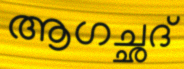
ആഗച്ഛദ്